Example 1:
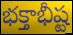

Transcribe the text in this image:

భక్తాభీష్ట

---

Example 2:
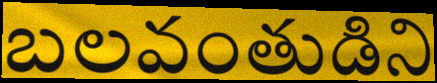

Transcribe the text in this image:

బలవంతుడిని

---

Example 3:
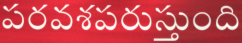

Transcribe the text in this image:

పరవశపరుస్తుంది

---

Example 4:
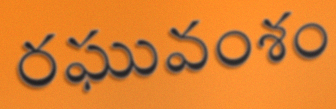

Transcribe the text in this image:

రఘువంశం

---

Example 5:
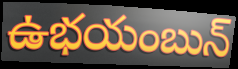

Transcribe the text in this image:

ఉభయంబున్